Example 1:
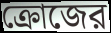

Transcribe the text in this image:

ক্রোজের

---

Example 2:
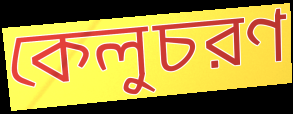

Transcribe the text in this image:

কেলুচরণ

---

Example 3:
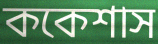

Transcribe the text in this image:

ককেশাস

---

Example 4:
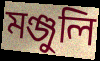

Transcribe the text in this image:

মঞ্জুলি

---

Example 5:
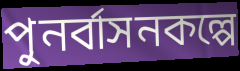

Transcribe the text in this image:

পুনর্বাসনকল্পে